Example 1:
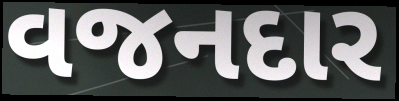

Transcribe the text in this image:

વજનદાર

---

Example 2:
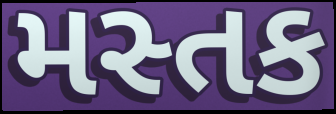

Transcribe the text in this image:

મસ્તક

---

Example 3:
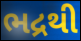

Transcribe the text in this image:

ભદ્રથી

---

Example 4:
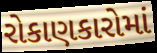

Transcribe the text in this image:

રોકાણકારોમાં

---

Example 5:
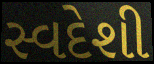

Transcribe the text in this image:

સ્વદેશી